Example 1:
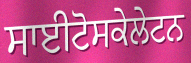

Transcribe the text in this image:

ਸਾਈਟੋਸਕੇਲੇਟਨ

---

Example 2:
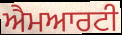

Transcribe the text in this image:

ਐਮਆਰਟੀ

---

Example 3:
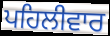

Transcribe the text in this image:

ਪਹਿਲੀਵਾਰ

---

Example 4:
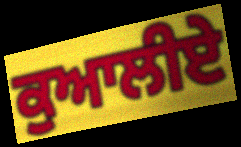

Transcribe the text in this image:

ਕੁਆਲੀਏ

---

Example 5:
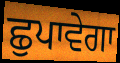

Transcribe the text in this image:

ਛੁਪਾਵੇਗਾ